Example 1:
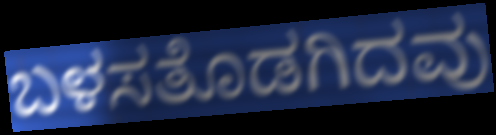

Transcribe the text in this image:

ಬಳಸತೊಡಗಿದವು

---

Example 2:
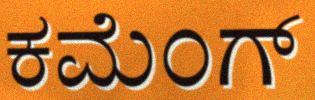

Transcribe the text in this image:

ಕಮೆಂಗ್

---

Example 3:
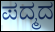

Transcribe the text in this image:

ಪದ್ಮದ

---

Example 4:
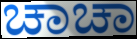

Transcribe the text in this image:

ಚಾಚಾ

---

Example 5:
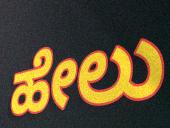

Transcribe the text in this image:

ಹೇಲು